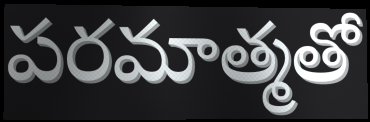
పరమాత్మతో